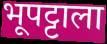
भूपट्टाला